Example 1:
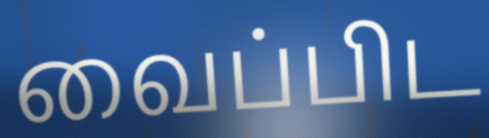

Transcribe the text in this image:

வைப்பிட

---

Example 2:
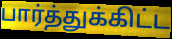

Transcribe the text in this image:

பார்த்துக்கிட்ட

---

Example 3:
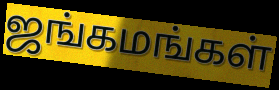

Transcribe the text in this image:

ஜங்கமங்கள்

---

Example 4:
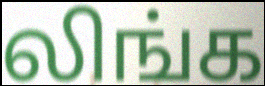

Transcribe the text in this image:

லிங்க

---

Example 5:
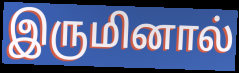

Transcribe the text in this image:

இருமினால்